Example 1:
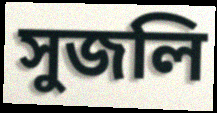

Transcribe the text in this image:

সুজলি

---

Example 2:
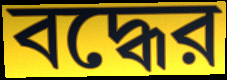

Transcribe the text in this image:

বদ্ধের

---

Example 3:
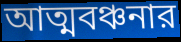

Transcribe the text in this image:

আত্মবঞ্চনার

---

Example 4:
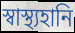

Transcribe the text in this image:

স্বাস্থ্যহানি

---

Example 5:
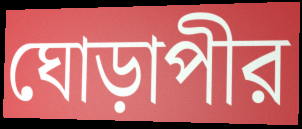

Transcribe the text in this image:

ঘোড়াপীর